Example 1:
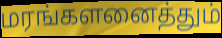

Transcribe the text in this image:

மரங்களனைத்தும்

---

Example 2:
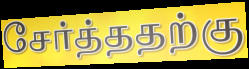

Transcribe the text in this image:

சேர்த்ததற்கு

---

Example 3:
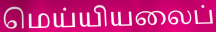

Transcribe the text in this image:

மெய்யியலைப்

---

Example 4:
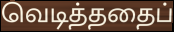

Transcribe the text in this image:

வெடித்ததைப்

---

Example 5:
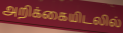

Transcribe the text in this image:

அறிக்கையிடலில்